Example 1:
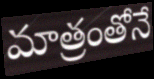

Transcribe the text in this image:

మాత్రంతోనే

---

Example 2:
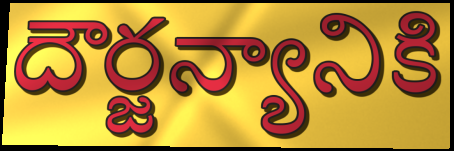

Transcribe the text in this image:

దౌర్జన్యానికి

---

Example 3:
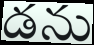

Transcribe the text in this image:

డను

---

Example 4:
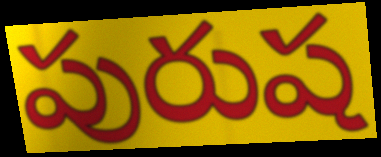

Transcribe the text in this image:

పురుష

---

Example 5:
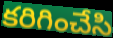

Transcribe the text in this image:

కరిగించేసి